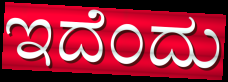
ಇದೆಂದು